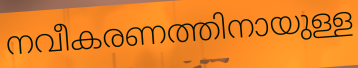
നവീകരണത്തിനായുള്ള